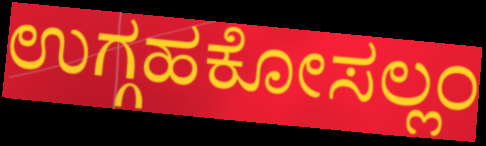
ಉಗ್ಗಹಕೋಸಲ್ಲಂ